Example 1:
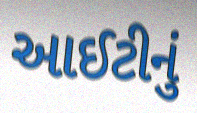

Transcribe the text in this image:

આઈટીનું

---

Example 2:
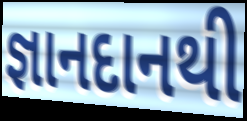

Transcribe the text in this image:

જ્ઞાનદાનથી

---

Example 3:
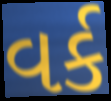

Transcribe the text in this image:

વર્ક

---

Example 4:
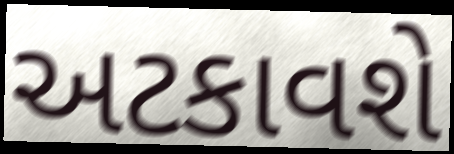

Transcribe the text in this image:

અટકાવશે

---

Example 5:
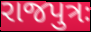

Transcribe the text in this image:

રાજપુત્રઃ